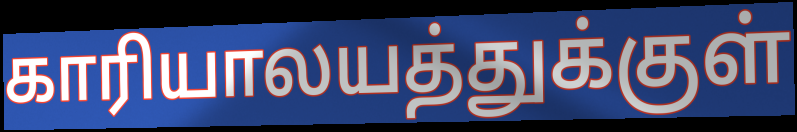
காரியாலயத்துக்குள்